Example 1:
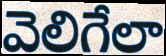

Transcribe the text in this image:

వెలిగేలా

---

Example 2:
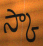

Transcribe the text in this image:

స్కా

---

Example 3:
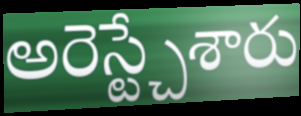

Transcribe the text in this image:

అరెస్ట్చేశారు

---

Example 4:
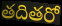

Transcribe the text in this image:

తదితరో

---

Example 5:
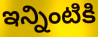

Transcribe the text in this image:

ఇన్నింటికి